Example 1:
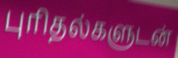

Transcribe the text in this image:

புரிதல்களுடன்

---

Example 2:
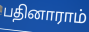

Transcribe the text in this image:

பதினாராம்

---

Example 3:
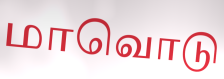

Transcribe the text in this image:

மாவொடு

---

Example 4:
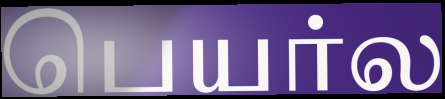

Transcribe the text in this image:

பெயர்ல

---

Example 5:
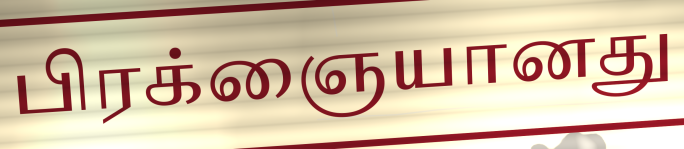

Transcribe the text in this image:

பிரக்ஞையானது